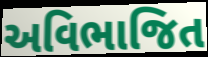
અવિભાજિત